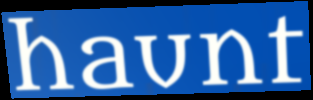
haunt